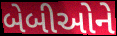
બેબીઓને